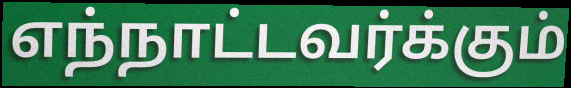
எந்நாட்டவர்க்கும்